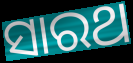
ସାରଥ